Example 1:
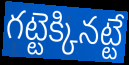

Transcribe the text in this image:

గట్టెక్కినట్టే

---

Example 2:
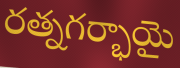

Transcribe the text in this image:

రత్నగర్భాయై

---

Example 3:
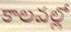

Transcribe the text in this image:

కాలవల్లో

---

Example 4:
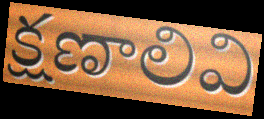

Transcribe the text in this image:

క్షణాలివి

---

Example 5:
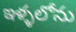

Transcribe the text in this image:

ఇళ్ళలోను